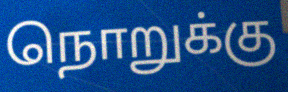
நொறுக்கு